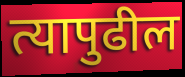
त्यापुढील